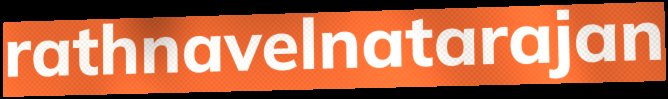
rathnavelnatarajan